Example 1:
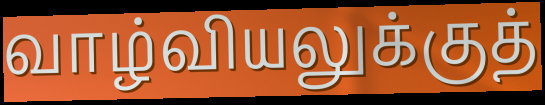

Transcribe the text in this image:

வாழ்வியலுக்குத்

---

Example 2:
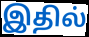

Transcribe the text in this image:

இதில்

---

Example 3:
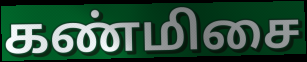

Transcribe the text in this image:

கண்மிசை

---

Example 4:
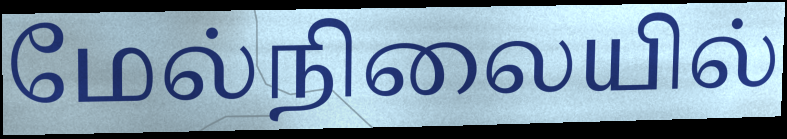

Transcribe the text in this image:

மேல்நிலையில்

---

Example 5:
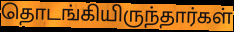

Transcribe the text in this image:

தொடங்கியிருந்தார்கள்